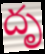
దృ